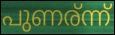
പുണര്ന്ന്